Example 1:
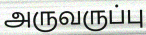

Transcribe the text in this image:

அருவருப்பு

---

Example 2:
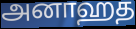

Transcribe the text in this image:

அனாஹத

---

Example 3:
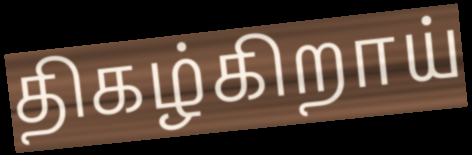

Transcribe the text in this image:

திகழ்கிறாய்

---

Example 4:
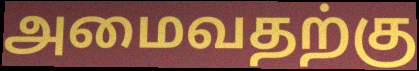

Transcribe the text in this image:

அமைவதற்கு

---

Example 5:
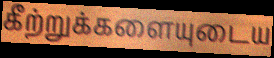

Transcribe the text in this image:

கீற்றுக்களையுடைய